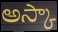
అస్కా